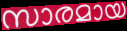
സാരമായ